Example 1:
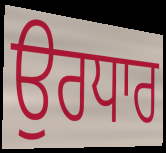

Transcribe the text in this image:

ਉਰਧਾਰ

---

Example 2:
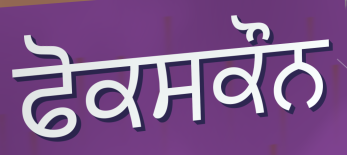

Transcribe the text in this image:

ਫੋਕਸਕੌਨ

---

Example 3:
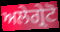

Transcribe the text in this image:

ਅਲੇਗ੍ਰੇਟੋ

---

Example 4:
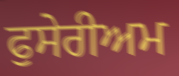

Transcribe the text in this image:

ਫੁਸੇਰੀਅਮ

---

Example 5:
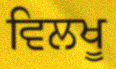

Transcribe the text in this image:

ਵਿਲਖੂ